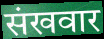
संखवार